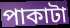
পাকাটা